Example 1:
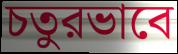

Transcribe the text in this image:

চতুরভাবে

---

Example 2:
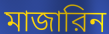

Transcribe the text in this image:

মাজারিন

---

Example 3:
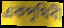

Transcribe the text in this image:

একপৃথিবী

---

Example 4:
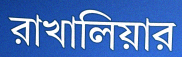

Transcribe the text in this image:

রাখালিয়ার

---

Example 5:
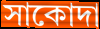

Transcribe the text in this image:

সাকোদা